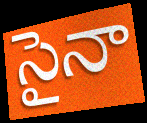
సైనా